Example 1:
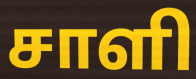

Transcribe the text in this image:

சாளி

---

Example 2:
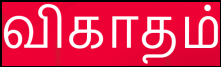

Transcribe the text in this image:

விகாதம்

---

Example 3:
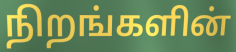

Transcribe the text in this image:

நிறங்களின்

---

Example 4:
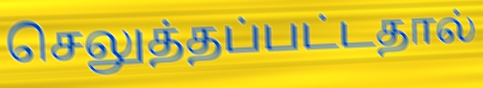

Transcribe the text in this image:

செலுத்தப்பட்டதால்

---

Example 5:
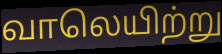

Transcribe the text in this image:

வாலெயிற்று